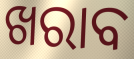
ଖରାବ